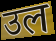
उल